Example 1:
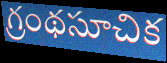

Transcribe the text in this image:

గ్రంథసూచిక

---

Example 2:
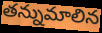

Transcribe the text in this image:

తన్నుమాలిన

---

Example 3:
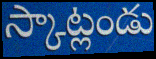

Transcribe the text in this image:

స్కాట్లండు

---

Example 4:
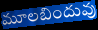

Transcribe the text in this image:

మూలబిందువు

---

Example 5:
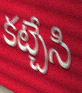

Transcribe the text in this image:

కట్చేసి